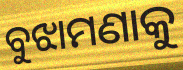
ବୁଝାମଣାକୁ